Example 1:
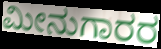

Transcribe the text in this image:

ಮೀನುಗಾರರ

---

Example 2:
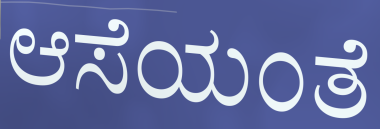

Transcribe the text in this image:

ಆಸೆಯಂತೆ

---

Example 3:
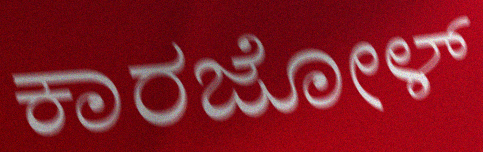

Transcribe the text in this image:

ಕಾರಜೋಳ್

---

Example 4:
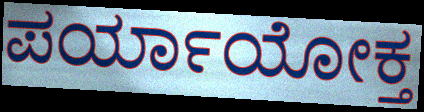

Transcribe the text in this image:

ಪರ್ಯಾಯೋಕ್ತ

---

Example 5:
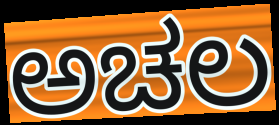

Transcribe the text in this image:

ಅಚಲ